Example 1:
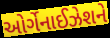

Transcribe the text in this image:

ઓર્ગેનાઈઝેશને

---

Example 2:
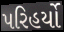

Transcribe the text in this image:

પરિહર્યો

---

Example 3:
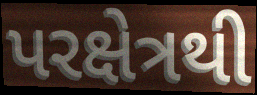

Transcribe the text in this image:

પરક્ષેત્રથી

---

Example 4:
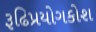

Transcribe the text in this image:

રૂઢિપ્રયોગકોશ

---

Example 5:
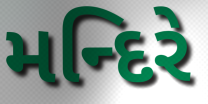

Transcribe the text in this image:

મન્દિરે